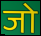
जो